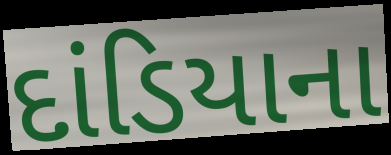
દાંડિયાના